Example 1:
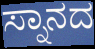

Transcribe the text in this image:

ಸ್ನಾನದ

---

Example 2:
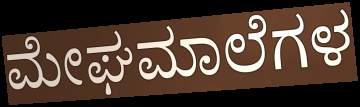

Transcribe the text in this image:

ಮೇಘಮಾಲೆಗಳ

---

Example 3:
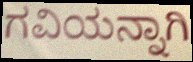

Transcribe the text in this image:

ಗವಿಯನ್ನಾಗಿ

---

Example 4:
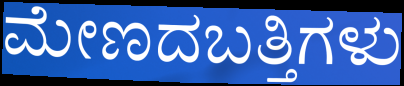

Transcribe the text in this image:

ಮೇಣದಬತ್ತಿಗಳು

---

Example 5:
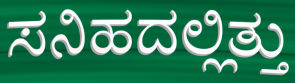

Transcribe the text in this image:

ಸನಿಹದಲ್ಲಿತ್ತು